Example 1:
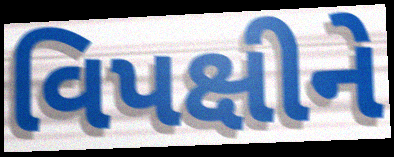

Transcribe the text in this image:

વિપક્ષીને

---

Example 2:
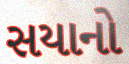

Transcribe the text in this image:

સયાનો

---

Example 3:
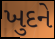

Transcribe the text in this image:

ખુદને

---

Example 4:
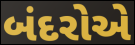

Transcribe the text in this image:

બંદરોએ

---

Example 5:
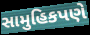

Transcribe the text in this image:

સામુહિકપણે